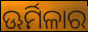
ଊର୍ମିଳାର